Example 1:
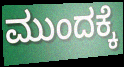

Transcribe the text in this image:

ಮುಂದಕ್ಕೆ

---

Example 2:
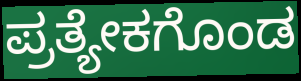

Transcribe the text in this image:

ಪ್ರತ್ಯೇಕಗೊಂಡ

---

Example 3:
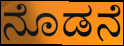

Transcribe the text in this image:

ನೊಡನೆ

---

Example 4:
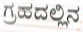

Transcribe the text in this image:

ಗ್ರಹದಲ್ಲಿನ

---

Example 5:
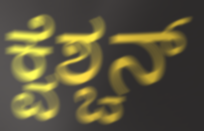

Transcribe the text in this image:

ಕ್ವೆಶ್ಚನ್